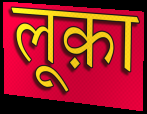
लूक़ा